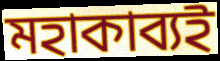
মহাকাব্যই